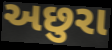
અછુરા